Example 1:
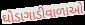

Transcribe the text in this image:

ઘોડાગાડીવાળાઓ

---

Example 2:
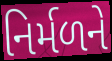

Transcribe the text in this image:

નિર્મળને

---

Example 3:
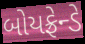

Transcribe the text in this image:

બોયફ્રેન્ડે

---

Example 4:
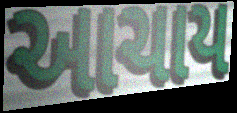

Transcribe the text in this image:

આચાય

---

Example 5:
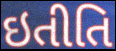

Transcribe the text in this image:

ઇતીતિ